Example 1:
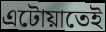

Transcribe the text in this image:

এটোয়াতেই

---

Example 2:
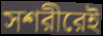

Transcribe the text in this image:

সশরীরেই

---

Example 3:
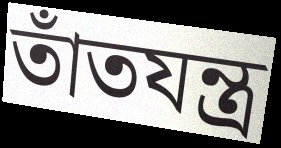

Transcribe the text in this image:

তাঁতযন্ত্র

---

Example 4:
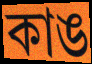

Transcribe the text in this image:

কাঙ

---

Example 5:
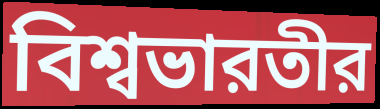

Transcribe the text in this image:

বিশ্বভারতীর